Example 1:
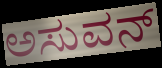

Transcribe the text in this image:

ಅಸುವನ್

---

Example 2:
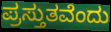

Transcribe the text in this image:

ಪ್ರಸ್ತುತವೆಂದು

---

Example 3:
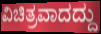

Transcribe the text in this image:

ವಿಚಿತ್ರವಾದದ್ದು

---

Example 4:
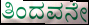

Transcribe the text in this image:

ತಿಂದವನೇ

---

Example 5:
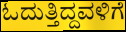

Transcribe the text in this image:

ಓದುತ್ತಿದ್ದವಳಿಗೆ